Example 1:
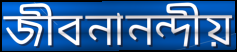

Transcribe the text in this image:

জীবনানন্দীয়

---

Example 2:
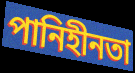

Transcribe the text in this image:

পানিহীনতা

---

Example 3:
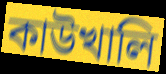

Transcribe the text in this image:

কাউখালি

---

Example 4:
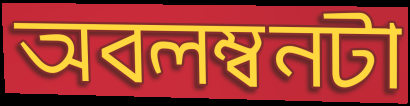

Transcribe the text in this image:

অবলম্বনটা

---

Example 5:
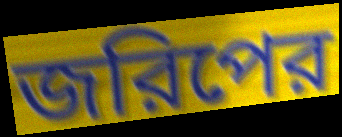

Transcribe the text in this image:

জরিপের